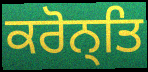
ਕਰੋਨ੍ਤਿ